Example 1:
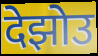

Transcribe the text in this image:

देझोउ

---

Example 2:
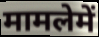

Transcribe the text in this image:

मामलेमें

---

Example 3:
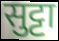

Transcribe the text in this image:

सुट्टा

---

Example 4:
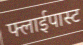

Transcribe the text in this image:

फ्लाईपास्ट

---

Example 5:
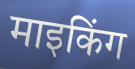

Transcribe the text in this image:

माइकिंग